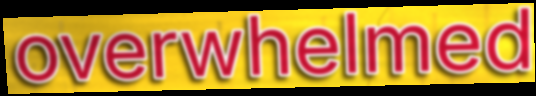
overwhelmed